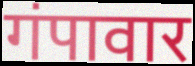
गंपावार